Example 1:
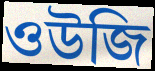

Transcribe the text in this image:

ওউজি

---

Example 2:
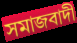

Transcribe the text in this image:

সমাজবাদী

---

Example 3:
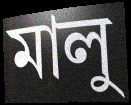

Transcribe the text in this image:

মালু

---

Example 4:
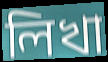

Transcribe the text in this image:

লিখা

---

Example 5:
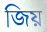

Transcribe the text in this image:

জিয়